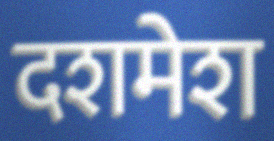
दशमेश